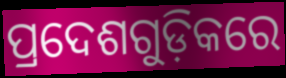
ପ୍ରଦେଶଗୁଡ଼ିକରେ